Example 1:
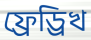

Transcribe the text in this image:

ফ্ৰেড্ৰিখ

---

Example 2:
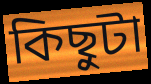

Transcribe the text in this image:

কিছুটা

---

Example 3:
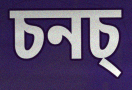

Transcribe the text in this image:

চনচ্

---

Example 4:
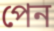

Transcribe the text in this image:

পেন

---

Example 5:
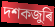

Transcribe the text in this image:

দশকজুৰি